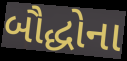
બૌદ્ધોના